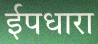
ईपधारा